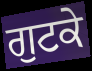
ਗੁਟਕੇ